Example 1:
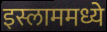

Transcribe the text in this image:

इस्लाममध्ये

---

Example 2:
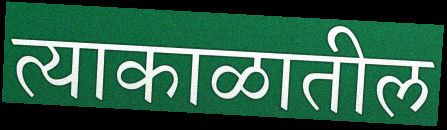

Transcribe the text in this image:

त्याकाळातील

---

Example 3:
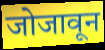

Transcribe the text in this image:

जोजावून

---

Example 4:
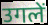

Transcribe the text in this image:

उगलें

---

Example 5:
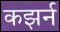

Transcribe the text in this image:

कझर्न